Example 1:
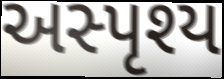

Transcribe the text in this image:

અસ્પૃશ્ય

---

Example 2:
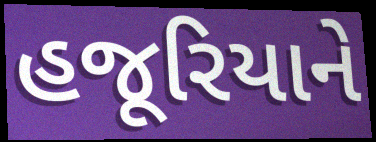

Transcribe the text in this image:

હજૂરિયાને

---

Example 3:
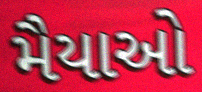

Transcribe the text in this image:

મૈયાઓ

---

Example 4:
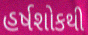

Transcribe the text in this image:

હર્ષશોકથી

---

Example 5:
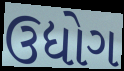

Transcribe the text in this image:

ઉદ્યોગ